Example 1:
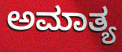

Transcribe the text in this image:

ಅಮಾತ್ಯ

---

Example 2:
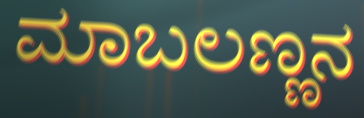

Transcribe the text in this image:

ಮಾಬಲಣ್ಣನ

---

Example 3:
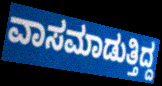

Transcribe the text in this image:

ವಾಸಮಾಡುತ್ತಿದ್ದ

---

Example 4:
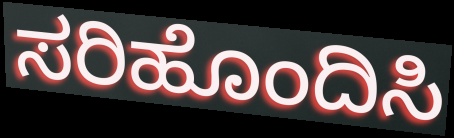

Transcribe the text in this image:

ಸರಿಹೊಂದಿಸಿ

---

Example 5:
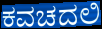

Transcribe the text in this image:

ಕವಚದಲಿ